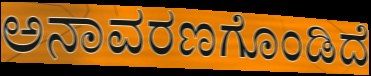
ಅನಾವರಣಗೊಂಡಿದೆ